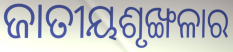
ଜାତୀୟଶୃଙ୍ଖଳାର